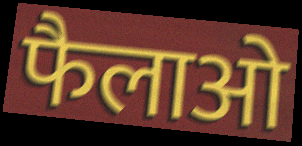
फैलाओ